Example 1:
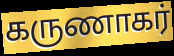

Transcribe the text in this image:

கருணாகர்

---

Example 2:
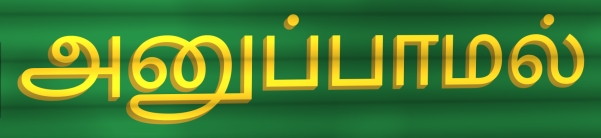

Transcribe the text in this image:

அனுப்பாமல்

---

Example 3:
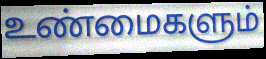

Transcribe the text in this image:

உண்மைகளும்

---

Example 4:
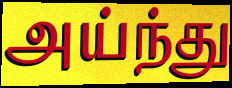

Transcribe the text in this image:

அய்ந்து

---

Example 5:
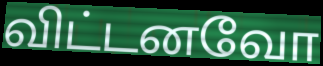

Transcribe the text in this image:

விட்டனவோ